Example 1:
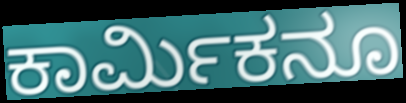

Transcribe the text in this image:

ಕಾರ್ಮಿಕನೂ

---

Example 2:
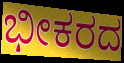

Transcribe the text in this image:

ಭೀಕರದ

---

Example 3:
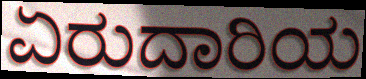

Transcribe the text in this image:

ಏರುದಾರಿಯ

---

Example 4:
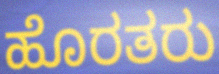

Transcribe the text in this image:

ಹೊರತರು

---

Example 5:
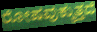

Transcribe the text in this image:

ರೋಷವುಕ್ಕುತ್ತದೆ